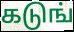
கடுங்